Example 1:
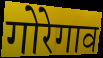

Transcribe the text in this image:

गोरेगाव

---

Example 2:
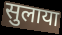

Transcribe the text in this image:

सुलाया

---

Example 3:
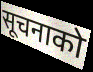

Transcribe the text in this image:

सूचनाको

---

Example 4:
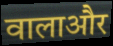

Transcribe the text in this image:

वालाऔर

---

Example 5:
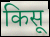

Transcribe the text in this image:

किसू